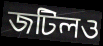
জটিলও